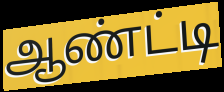
ஆண்ட்டி